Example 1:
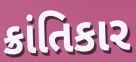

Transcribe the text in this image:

ક્રાંતિકાર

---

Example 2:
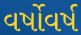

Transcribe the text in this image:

વર્ષોવર્ષ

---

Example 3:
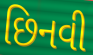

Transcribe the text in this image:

છિનવી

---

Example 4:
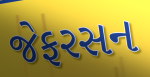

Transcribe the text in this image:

જેફરસન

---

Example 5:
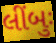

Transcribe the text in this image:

લીંબુઃ